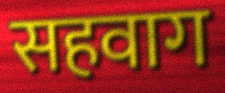
सहवाग